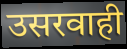
उसरवाही